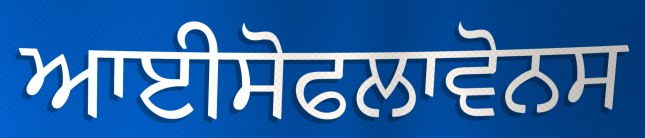
ਆਈਸੋਫਲਾਵੋਨਸ